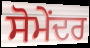
ਸੋਮੇਂਦਰ